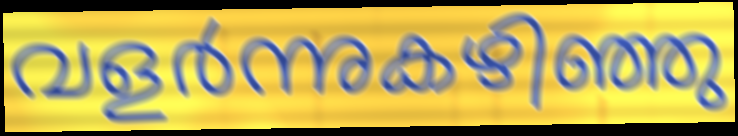
വളർന്നുകഴിഞ്ഞു